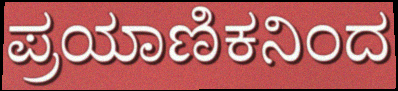
ಪ್ರಯಾಣಿಕನಿಂದ